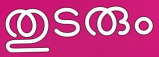
തുടരും